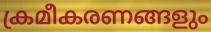
ക്രമീകരണങ്ങളും